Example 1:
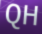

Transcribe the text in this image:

QH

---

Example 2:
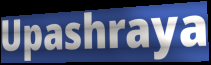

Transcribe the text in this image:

Upashraya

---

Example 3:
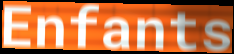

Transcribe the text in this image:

Enfants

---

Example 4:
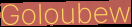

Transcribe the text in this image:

Goloubew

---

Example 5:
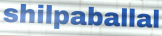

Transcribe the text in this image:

shilpaballal